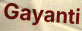
Gayanti